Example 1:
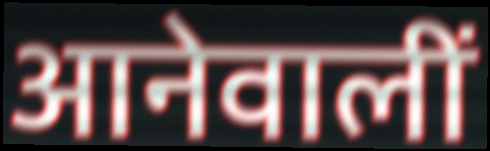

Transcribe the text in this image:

आनेवालीं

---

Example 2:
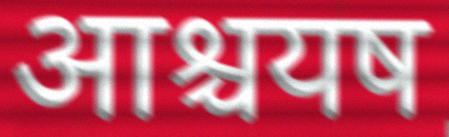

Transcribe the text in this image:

आश्चयष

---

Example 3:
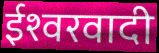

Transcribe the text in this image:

ईश्वरवादी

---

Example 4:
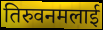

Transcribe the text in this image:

तिरुवनमलाई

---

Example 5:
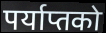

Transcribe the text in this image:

पर्याप्तको